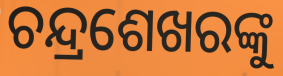
ଚନ୍ଦ୍ରଶେଖରଙ୍କୁ